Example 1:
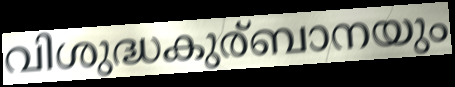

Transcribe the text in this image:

വിശുദ്ധകുര്ബാനയും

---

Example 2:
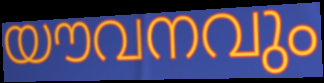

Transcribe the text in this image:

യൗവനവും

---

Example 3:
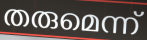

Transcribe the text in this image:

തരുമെന്ന്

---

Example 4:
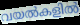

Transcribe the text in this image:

വയൽകളിൽ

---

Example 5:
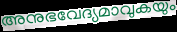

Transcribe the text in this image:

അനുഭവേദ്യമാവുകയും